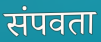
संपवता